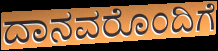
ದಾನವರೊಂದಿಗೆ